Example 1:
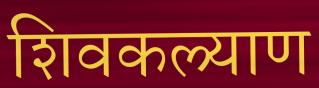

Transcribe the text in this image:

शिवकल्याण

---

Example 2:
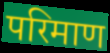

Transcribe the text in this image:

परिमाण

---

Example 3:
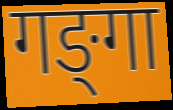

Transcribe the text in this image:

गङ्‍गा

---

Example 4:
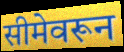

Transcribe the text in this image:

सीमेवरून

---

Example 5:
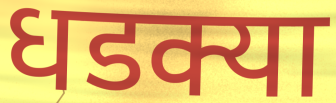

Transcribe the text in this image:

धडक्या